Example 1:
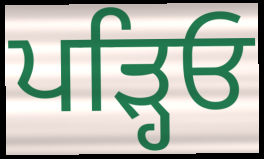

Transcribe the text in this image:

ਪੜ੍ਹਿਓ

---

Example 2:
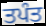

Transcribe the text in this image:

ਤਪੰਤ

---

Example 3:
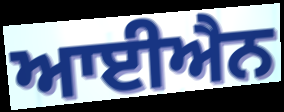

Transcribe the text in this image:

ਆਈਐਨ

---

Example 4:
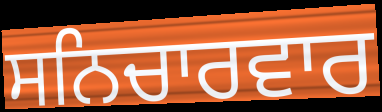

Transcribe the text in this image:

ਸਨਿਚਾਰਵਾਰ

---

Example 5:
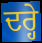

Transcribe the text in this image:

ਦਰ੍ਹੇ